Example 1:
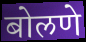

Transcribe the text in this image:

बोलणे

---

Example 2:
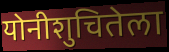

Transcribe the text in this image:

योनीशुचितेला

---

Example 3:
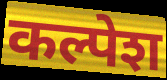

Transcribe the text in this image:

कल्पेश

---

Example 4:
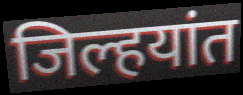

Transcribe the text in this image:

जिल्हयांत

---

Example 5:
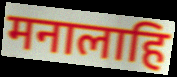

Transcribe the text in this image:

मनालाहि